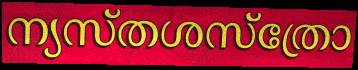
ന്യസ്തശസ്ത്രോ